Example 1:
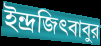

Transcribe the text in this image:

ইন্দ্রজিৎবাবুর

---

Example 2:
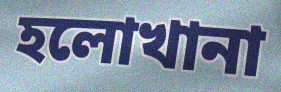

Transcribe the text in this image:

হলোখানা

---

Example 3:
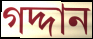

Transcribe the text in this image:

গদ্দান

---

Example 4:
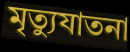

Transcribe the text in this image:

মৃত্যুযাতনা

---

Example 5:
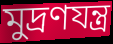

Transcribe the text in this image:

মুদ্রণযন্ত্র